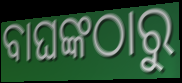
ବାଘଙ୍କଠାରୁ